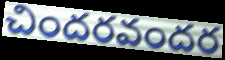
చిందరవందర